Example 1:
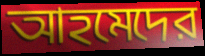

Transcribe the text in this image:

আহমেদের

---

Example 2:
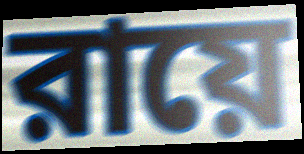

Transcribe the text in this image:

রায়ে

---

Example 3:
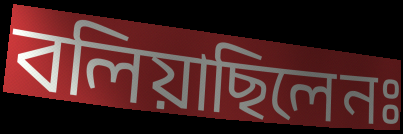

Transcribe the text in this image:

বলিয়াছিলেনঃ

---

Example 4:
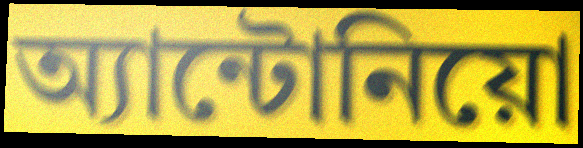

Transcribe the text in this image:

অ্যান্টোনিয়ো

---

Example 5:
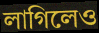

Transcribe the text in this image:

লাগিলেও